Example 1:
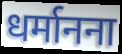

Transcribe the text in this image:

धर्मानना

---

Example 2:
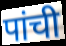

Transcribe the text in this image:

पांची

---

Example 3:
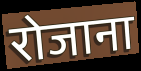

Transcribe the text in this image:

रोजाना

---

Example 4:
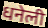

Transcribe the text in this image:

धनेली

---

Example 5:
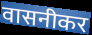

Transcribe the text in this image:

वासनीकर